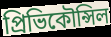
প্রিভিকৌন্সিল